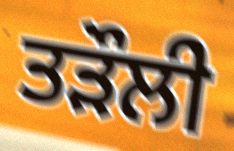
ਤੜੌਲੀ